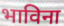
भाविना